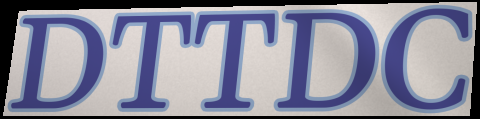
DTTDC